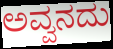
ಅವ್ವನದು